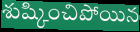
శుష్కించిపోయిన